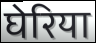
घेरिया